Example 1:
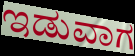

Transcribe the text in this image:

ಇಡುವಾಗ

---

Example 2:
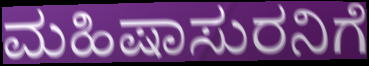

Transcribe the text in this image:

ಮಹಿಷಾಸುರನಿಗೆ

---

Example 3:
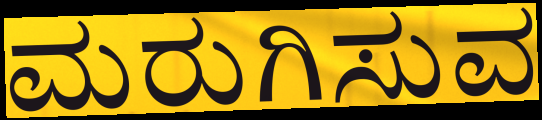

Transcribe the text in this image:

ಮರುಗಿಸುವ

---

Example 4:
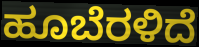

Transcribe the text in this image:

ಹೂಬೆರಳಿದೆ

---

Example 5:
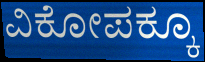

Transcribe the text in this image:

ವಿಕೋಪಕ್ಕೂ